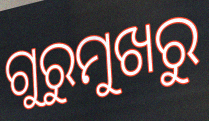
ଗୁରୁମୁଖରୁ